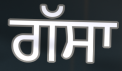
ਗੱਸਾ